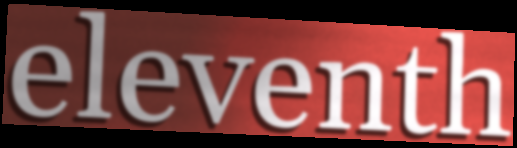
eleventh